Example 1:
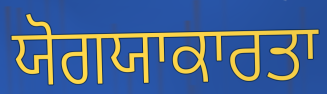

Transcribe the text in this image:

ਯੋਗਯਾਕਾਰਤਾ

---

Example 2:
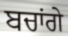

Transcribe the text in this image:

ਬਚਾਂਗੇ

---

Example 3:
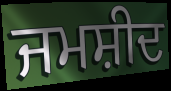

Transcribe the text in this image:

ਜਮਸ਼ੀਦ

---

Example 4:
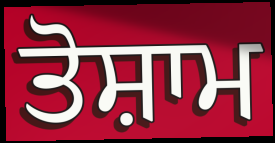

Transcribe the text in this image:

ਤੋਸ਼ਾਮ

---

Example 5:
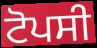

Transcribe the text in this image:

ਟੋਪਸੀ